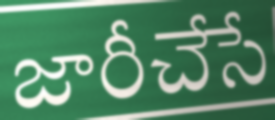
జారీచేసే